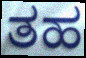
ತಹ